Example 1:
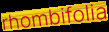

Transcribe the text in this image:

rhombifolia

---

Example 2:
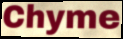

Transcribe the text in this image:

Chyme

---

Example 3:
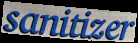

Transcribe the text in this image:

sanitizer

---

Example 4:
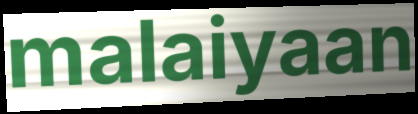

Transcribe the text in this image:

malaiyaan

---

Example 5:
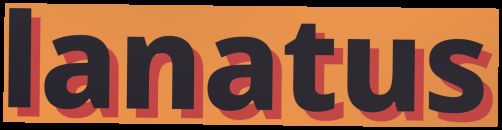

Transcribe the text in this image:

lanatus